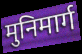
मुनिमार्ग